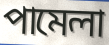
পামেলা